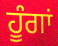
ਹੂੰਗਾਂ